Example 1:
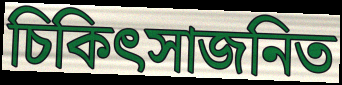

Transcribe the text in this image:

চিকিৎসাজনিত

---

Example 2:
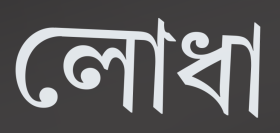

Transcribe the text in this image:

লোধা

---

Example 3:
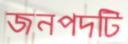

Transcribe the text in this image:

জনপদটি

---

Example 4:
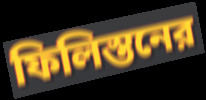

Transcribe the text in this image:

ফিলিস্তনের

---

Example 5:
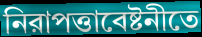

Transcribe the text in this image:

নিরাপত্তাবেষ্টনীতে